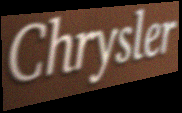
Chrysler